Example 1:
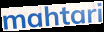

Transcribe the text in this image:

mahtari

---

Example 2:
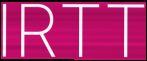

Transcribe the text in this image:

IRTT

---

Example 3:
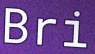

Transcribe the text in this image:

Bri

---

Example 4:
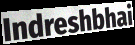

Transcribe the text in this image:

Indreshbhai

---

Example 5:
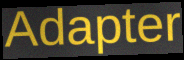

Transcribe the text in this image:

Adapter